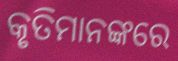
କୃତିମାନଙ୍କରେ